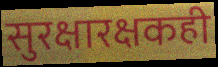
सुरक्षारक्षकही